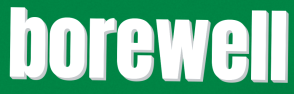
borewell